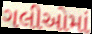
ગલીઓમાં